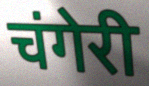
चंगेरी